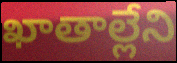
ఖాతాల్లేని